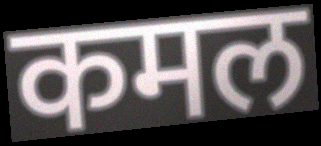
कमल